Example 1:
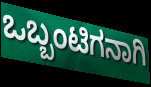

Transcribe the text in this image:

ಒಬ್ಬಂಟಿಗನಾಗಿ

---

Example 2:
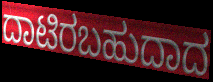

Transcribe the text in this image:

ದಾಟಿರಬಹುದಾದ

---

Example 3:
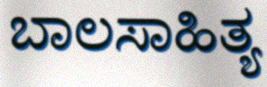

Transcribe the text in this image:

ಬಾಲಸಾಹಿತ್ಯ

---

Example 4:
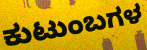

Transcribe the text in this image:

ಕುಟುಂಬಗಳ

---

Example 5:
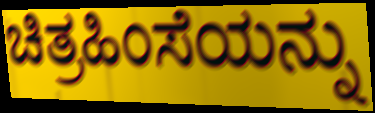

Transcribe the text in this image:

ಚಿತ್ರಹಿಂಸೆಯನ್ನು